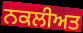
ਨਕਲੀਅਤ